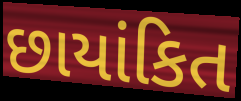
છાયાંકિત